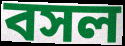
বসল